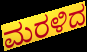
ಮರಳಿದ